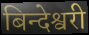
बिन्देश्वरी